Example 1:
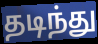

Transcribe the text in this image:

தடிந்து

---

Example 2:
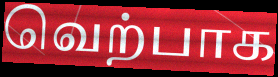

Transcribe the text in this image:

வெற்பாக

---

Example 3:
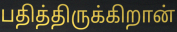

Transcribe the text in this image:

பதித்திருக்கிறான்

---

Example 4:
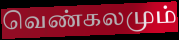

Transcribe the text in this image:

வெண்கலமும்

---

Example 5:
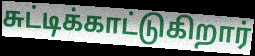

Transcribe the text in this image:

சுட்டிக்காட்டுகிறார்